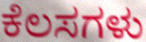
ಕೆಲಸಗಳು